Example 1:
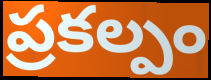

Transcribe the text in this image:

ప్రకల్పం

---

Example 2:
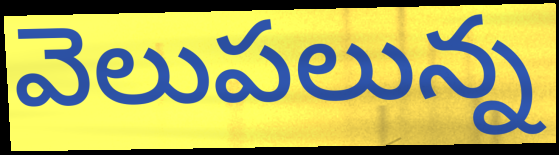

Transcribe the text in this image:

వెలుపలున్న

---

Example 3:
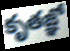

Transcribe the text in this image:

కృతజ్ఞో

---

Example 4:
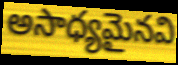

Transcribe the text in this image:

అసాధ్యమైనవి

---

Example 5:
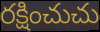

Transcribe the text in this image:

రక్షించుచు